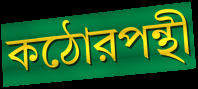
কঠোরপন্থী